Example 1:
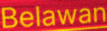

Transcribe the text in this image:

Belawan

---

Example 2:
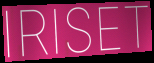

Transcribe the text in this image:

IRISET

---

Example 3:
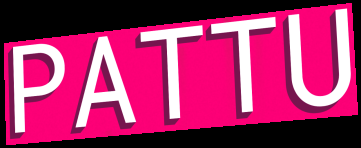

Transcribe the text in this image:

PATTU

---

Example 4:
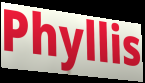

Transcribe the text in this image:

Phyllis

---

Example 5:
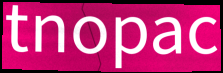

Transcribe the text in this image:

tnopac